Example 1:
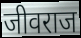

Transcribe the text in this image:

जीवराज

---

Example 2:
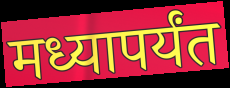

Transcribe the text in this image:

मध्यापर्यंत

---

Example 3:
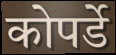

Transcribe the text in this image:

कोपर्डे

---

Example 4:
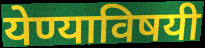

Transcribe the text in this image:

येण्याविषयी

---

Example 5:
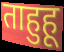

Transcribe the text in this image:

ताहुहू